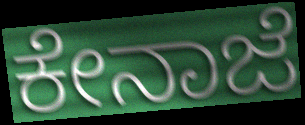
ಕೇನಾಜೆ